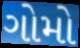
ગોમો